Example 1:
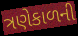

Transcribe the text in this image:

ત્રણેકાળની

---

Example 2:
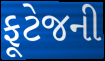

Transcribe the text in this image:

ફૂટેજની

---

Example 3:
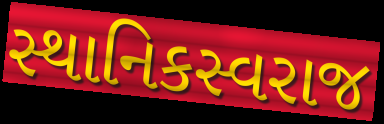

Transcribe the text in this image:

સ્થાનિકસ્વરાજ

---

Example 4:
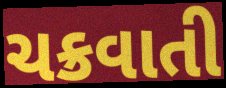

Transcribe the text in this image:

ચક્રવાતી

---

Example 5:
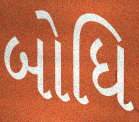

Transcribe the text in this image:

બોધિ